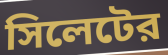
সিলেটের